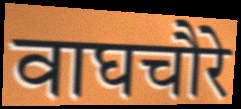
वाघचौरे